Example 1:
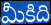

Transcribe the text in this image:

మీకిది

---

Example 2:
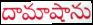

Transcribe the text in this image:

దామాషాను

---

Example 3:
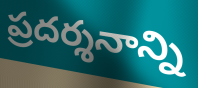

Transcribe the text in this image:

ప్రదర్శనాన్ని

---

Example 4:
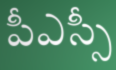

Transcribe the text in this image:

పీఎస్సీ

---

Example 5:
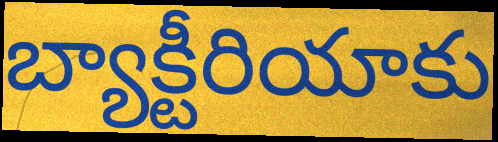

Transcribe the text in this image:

బ్యాక్టీరియాకు